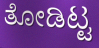
ತೋಡಿಟ್ಟ